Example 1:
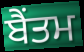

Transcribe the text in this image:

ਬੈਂਤਮ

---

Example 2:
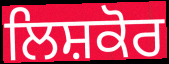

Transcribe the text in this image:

ਲਿਸ਼ਕੋਰ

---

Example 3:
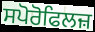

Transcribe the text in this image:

ਸਪੋਰੋਫਿਲਜ਼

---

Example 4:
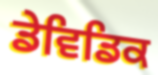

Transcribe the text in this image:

ਡੇਵਿਡਿਕ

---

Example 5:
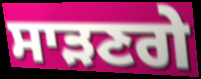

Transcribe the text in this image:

ਸਾੜਣਗੇ